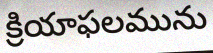
క్రియాఫలమును